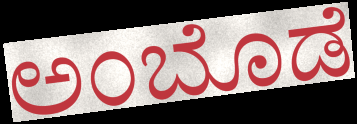
ಅಂಬೊಡೆ